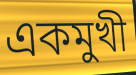
একমুখী